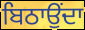
ਬਿਠਾਉਂਦਾ